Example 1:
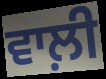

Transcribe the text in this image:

ਵਾਲ਼ੀ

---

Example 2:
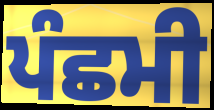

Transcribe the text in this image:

ਪੰਛਮੀ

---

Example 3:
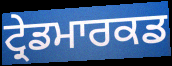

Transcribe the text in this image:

ਟ੍ਰੇਡਮਾਰਕਡ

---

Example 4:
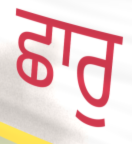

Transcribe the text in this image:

ਛਾਰੁ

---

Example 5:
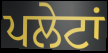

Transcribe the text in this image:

ਪਲੇਟਾਂ